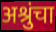
अश्रुंचा